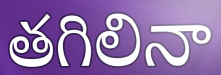
తగిలినా